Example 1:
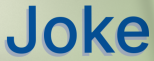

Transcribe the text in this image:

Joke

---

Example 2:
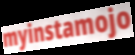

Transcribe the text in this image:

myinstamojo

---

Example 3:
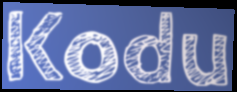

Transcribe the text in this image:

Kodu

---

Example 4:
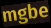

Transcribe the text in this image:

mgbe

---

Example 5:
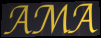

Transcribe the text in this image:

AMA